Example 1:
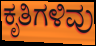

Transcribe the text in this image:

ಕೃತಿಗಳಿವು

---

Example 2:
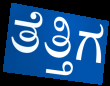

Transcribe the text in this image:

ತೆತ್ತಿಗ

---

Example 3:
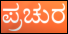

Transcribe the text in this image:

ಪ್ರಚುರ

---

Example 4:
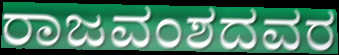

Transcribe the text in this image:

ರಾಜವಂಶದವರ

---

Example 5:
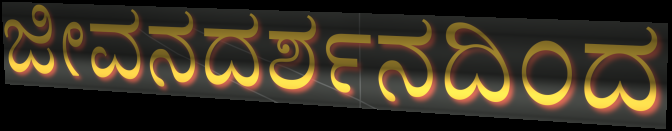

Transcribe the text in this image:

ಜೀವನದರ್ಶನದಿಂದ